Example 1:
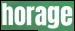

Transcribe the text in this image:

horage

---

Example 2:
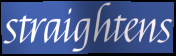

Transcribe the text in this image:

straightens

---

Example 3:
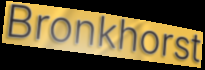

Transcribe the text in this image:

Bronkhorst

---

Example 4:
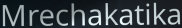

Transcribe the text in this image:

Mrechakatika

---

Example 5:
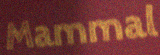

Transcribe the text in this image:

Mammal